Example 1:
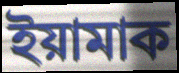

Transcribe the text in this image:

ইয়ামাক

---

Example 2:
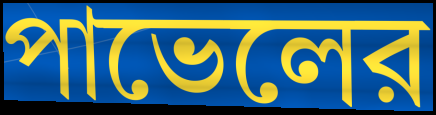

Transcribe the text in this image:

পাভেলের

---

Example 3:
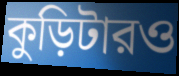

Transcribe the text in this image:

কুড়িটারও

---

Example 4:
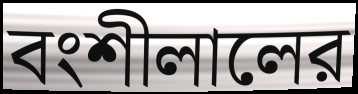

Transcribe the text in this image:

বংশীলালের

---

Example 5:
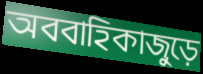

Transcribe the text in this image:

অববাহিকাজুড়ে